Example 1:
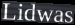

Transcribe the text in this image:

Lidwas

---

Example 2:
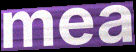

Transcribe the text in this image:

mea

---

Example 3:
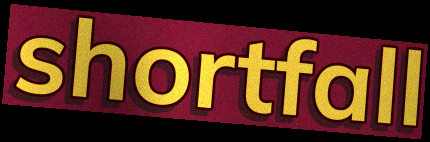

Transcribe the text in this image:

shortfall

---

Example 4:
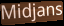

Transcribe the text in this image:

Midjans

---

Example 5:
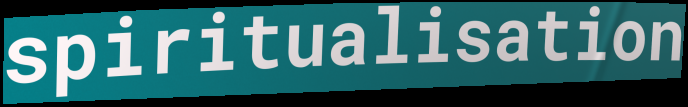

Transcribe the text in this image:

spiritualisation